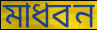
মাধবন